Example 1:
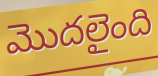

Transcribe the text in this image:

మొదలైంది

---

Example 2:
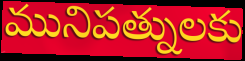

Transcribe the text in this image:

మునిపత్నులకు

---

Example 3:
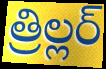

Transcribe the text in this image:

త్రిల్లర్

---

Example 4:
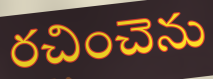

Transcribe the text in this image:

రచించెను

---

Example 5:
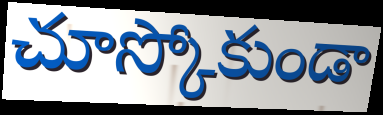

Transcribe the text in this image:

చూస్కోకుండా